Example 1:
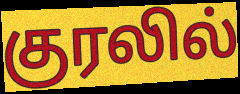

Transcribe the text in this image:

குரலில்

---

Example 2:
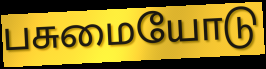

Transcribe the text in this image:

பசுமையோடு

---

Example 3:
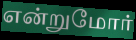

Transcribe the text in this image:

என்றுமோர்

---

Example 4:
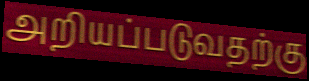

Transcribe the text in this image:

அறியப்படுவதற்கு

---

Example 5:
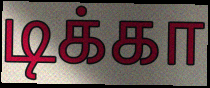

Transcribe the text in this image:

டிக்கா